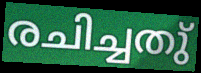
രചിച്ചതു്